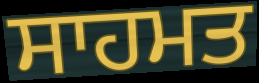
ਸਾਹਮਤ